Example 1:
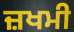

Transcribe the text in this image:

ਜ਼ਖਮੀ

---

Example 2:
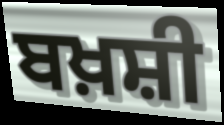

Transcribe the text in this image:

ਬਖ਼ਸ਼ੀ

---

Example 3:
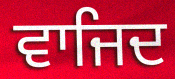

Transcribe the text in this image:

ਵਾਜਿਦ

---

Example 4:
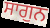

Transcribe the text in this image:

ਸਾਗੁਨ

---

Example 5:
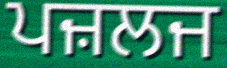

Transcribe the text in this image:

ਪਜ਼ਲਜ